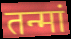
तन्मां